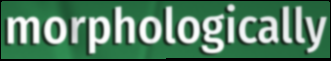
morphologically